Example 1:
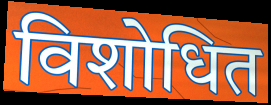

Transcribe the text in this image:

विशोधित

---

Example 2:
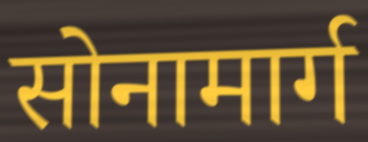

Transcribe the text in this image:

सोनामार्ग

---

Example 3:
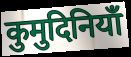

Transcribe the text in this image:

कुमुदिनियाँ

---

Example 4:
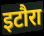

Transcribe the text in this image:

इटौरा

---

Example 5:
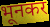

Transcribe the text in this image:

भूनकर